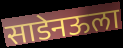
साडेनऊला